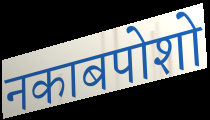
नकाबपोशो